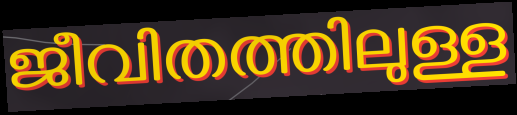
ജീവിതത്തിലുള്ള